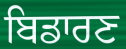
ਬਿਡਾਰਣ